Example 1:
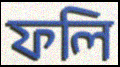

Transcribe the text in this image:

ফলি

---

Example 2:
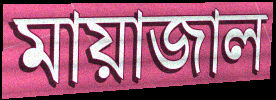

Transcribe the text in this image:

মায়াজাল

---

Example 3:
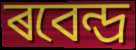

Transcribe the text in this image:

ৰবেন্দ্ৰ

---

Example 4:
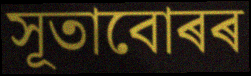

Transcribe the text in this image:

সূতাবোৰৰ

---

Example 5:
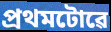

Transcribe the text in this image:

প্ৰথমটোৱে